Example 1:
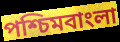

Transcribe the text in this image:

পশ্চিমবাংলা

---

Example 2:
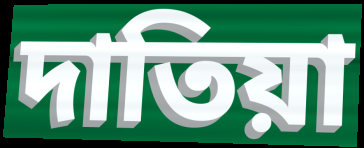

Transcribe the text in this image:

দাতিয়া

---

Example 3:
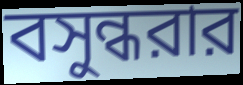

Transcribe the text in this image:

বসুন্ধরার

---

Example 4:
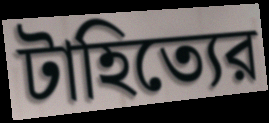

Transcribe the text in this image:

টাহিত্যের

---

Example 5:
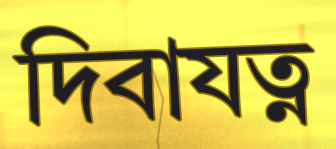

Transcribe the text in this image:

দিবাযত্ন